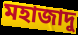
মহাজাদু